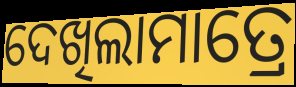
ଦେଖିଲାମାତ୍ରେ